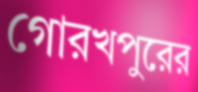
গোরখপুরের